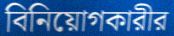
বিনিয়োগকারীর